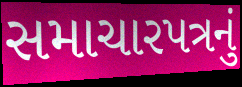
સમાચારપત્રનું